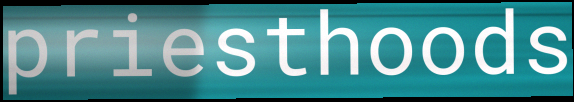
priesthoods